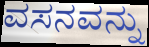
ವಸನವನ್ನು